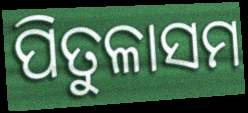
ପିତୁଳାସମ